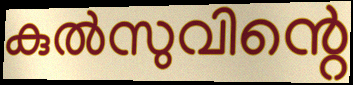
കുൽസുവിന്റെ